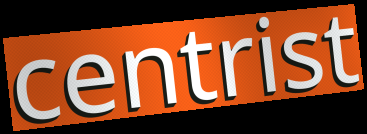
centrist